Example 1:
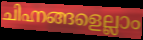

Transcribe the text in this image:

ചിഹ്നങ്ങളെല്ലാം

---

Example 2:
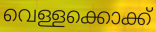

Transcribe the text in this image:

വെള്ളക്കൊക്ക്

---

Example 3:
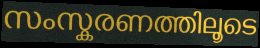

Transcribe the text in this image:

സംസ്കരണത്തിലൂടെ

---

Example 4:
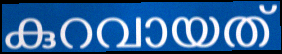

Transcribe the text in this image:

കുറവായത്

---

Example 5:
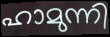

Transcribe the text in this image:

ഹാമുന്നി